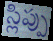
స్లిప్పు